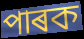
পাৰক